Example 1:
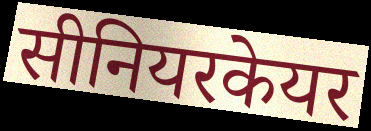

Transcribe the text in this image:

सीनियरकेयर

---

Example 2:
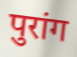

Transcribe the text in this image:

पुरांग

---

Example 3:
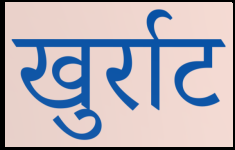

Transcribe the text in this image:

खुर्राट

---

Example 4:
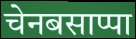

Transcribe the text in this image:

चेनबसाप्पा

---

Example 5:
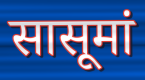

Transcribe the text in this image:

सासूमां